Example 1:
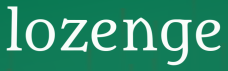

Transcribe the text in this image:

lozenge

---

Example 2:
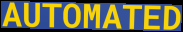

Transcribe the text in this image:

AUTOMATED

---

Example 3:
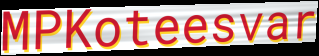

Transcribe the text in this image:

MPKoteesvar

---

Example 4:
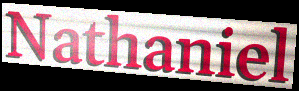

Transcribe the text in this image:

Nathaniel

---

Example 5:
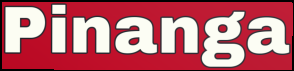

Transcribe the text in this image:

Pinanga